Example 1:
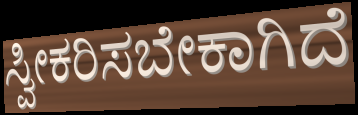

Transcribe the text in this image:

ಸ್ವೀಕರಿಸಬೇಕಾಗಿದೆ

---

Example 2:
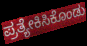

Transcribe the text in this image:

ಪ್ರತ್ಯೇಕಿಸಿಕೊಂಡು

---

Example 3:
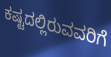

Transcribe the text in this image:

ಕಷ್ಟದಲ್ಲಿರುವವರಿಗೆ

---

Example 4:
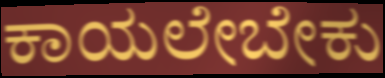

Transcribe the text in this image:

ಕಾಯಲೇಬೇಕು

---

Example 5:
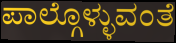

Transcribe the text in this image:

ಪಾಲ್ಗೊಳ್ಳುವಂತೆ